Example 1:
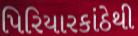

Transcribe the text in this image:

પિરિયારકાંઠેથી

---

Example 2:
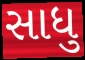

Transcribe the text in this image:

સાધુ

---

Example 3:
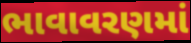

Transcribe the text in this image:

ભાવાવરણમાં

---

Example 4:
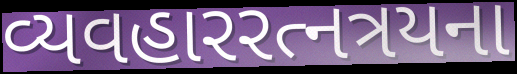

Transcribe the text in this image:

વ્યવહારરત્નત્રયના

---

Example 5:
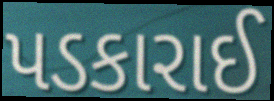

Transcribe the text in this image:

પડકારાઈ